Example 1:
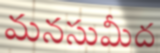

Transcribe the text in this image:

మనసుమీద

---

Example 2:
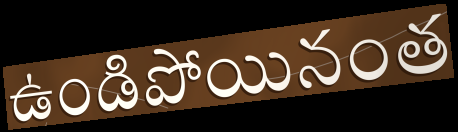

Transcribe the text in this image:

ఉండిపోయినంత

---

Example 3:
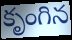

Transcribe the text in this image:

కృంగిన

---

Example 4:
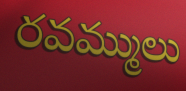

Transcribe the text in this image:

రవమ్ములు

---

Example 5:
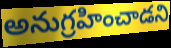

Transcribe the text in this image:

అనుగ్రహించాడని